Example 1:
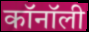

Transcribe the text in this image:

कॉनॉली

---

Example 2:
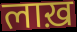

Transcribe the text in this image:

लाख़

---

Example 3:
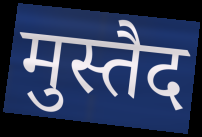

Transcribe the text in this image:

मुस्तैद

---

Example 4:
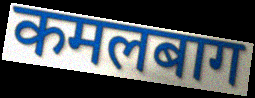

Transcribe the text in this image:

कमलबाग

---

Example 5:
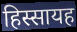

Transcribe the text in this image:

हिस्सायह